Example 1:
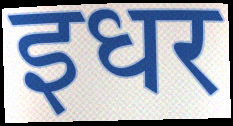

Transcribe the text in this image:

इधर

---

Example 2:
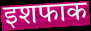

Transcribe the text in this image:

इशफाक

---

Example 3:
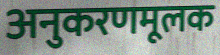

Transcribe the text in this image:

अनुकरणमूलक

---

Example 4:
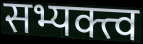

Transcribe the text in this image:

सभ्यक्त्व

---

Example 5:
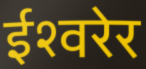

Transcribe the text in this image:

ईश्वरेर